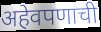
अहेवपणाची